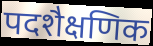
पदशैक्षणिक